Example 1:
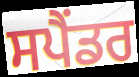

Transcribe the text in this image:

ਸਪੈਂਡਰ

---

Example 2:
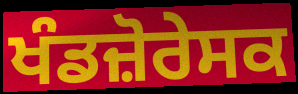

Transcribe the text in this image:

ਖੰਡਜ਼ੋਰੇਸਕ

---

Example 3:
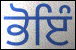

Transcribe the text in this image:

ਭੋਇੰ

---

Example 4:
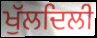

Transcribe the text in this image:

ਖੁੱਲਦਿਲੀ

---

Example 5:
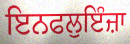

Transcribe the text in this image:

ਇਨਫਲੁਇੰਜ਼ਾ